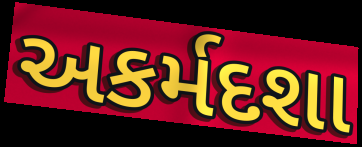
અકર્મદશા